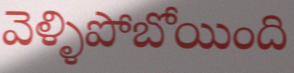
వెళ్ళిపోబోయింది